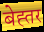
बेह्तर